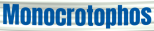
Monocrotophos